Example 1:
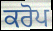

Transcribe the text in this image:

ਕਰੋਪ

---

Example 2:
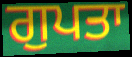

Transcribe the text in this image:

ਗੁਪਤਾ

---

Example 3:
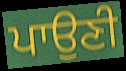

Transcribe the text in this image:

ਪਾਉਣੀ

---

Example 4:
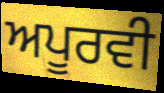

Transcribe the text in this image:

ਅਪੂਰਵੀ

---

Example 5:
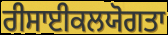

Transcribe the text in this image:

ਰੀਸਾਈਕਲਯੋਗਤਾ